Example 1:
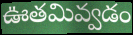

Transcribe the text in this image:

ఊతమివ్వడం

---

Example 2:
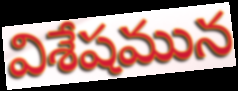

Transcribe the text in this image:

విశేషమున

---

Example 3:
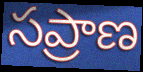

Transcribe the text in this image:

సప్రాణ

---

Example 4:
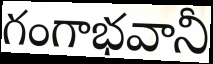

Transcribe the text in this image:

గంగాభవానీ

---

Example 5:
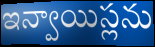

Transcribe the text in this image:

ఇన్వాయిస్లను